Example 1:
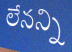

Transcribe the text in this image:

లేనన్ని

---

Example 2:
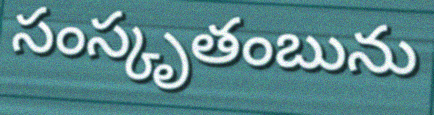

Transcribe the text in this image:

సంస్కృతంబును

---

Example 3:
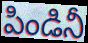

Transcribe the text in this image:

పిండినీ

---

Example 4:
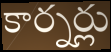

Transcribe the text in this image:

కార్నర్లు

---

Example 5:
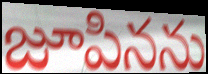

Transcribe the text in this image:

జూపినను